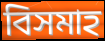
বিসমাহ